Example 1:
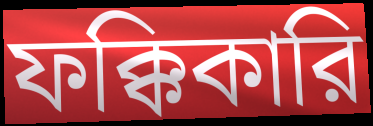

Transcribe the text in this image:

ফক্কিকারি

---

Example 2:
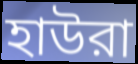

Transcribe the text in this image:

হাউরা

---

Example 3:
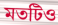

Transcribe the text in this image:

মতটিও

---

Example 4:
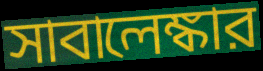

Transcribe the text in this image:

সাবালেঙ্কার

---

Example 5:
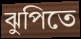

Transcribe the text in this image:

ঝুপিতে